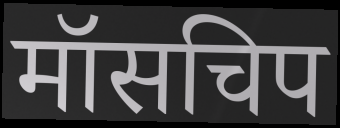
मॉसचिप